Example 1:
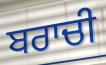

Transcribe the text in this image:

ਬਰਾਚੀ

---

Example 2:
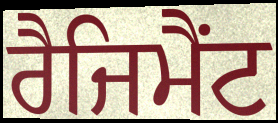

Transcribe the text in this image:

ਰੈਜਿਮੈਂਟ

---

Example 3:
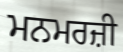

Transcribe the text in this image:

ਮਨਮਰਜ਼ੀ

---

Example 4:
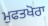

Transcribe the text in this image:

ਮੁਫਤਖੋਰਾ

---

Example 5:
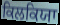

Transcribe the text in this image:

ਕਿਲਕਿਯਾ